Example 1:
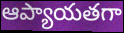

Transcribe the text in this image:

ఆప్యాయతగా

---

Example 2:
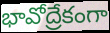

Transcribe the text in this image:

భావోద్రేకంగా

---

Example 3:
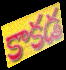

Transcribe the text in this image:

కాకడ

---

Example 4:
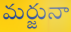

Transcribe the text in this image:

మర్జునా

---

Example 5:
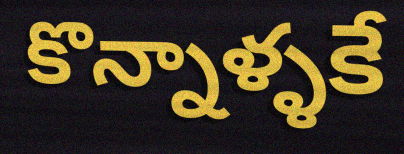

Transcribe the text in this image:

కొన్నాళ్ళకే